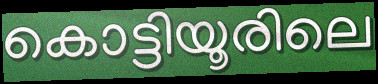
കൊട്ടിയൂരിലെ